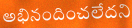
అభినందించలేదని